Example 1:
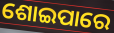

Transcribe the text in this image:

ଶୋଇପାରେ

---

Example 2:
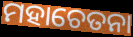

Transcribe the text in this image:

ମହାଚେତନା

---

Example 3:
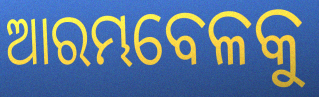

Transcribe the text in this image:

ଆରମ୍ଭବେଳକୁ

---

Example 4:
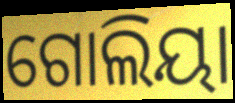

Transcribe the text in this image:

ଗୋଲିୟା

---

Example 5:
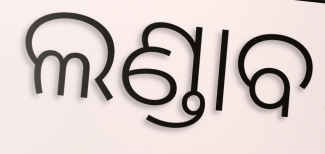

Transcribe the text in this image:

ଲଣ୍ଡାବ